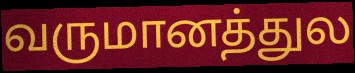
வருமானத்துல